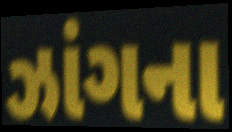
ઝાંગના